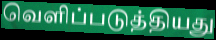
வெளிப்படுத்தியது